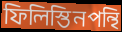
ফিলিস্তিনপন্থি